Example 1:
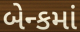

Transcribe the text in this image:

બેન્કમાં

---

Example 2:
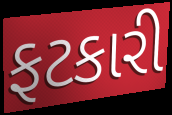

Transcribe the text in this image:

ફટકારી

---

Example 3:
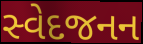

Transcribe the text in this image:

સ્વેદજનન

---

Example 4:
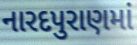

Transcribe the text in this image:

નારદપુરાણમાં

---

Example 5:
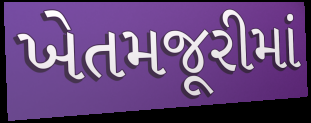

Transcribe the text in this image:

ખેતમજૂરીમાં